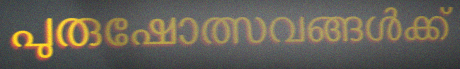
പുരുഷോത്സവങ്ങൾക്ക്